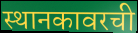
स्थानकावरची